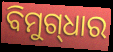
ବିମୁଗ୍‌ଧାର